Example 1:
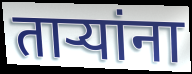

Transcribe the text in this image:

ताऱ्यांना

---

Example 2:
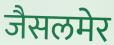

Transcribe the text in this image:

जैसलमेर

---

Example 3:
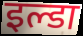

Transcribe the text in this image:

इल्डा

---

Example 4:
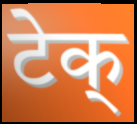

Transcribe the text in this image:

टेक्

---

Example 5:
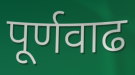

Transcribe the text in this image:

पूर्णवाढ